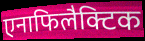
एनाफिलैक्टिक